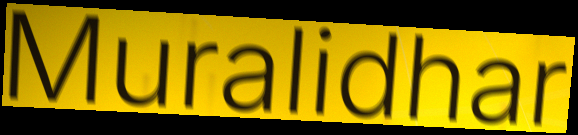
Muralidhar